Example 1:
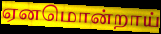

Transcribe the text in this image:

ஏனமொன்றாய்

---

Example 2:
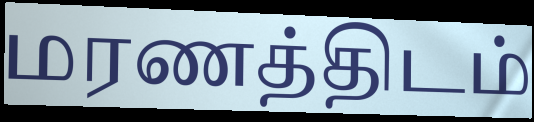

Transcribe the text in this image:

மரணத்திடம்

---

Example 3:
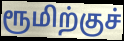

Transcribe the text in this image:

ரூமிற்குச்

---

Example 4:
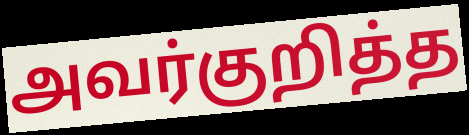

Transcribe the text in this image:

அவர்குறித்த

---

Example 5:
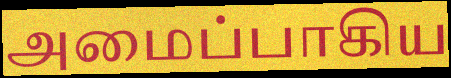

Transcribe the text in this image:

அமைப்பாகிய